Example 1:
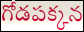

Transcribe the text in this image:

గోడపక్కన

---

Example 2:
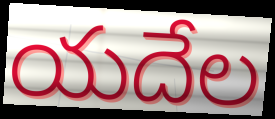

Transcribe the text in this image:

యదేల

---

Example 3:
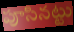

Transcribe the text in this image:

పూసినట్టు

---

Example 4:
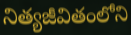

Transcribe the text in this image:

నిత్యజీవితంలోని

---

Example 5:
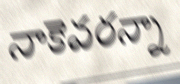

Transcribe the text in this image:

నాకెవరన్నా